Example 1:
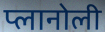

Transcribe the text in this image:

प्लानोली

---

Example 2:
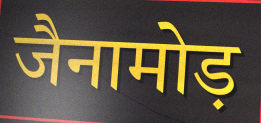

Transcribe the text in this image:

जैनामोड़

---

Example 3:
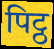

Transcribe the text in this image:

पिट्ठ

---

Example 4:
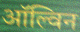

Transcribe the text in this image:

ऑल्विन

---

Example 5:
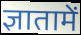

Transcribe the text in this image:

ज्ञातामें